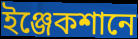
ইঞ্জেকশানে